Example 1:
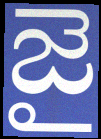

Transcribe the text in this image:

జై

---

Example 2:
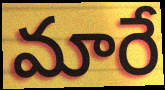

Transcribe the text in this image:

మారే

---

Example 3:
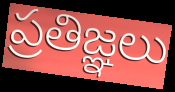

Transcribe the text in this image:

ప్రతిజ్ఞలు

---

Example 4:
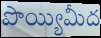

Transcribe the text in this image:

పొయ్యిమీద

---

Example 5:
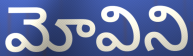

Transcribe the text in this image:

మోవిని